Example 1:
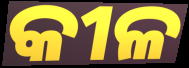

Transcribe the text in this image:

କୀଳ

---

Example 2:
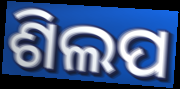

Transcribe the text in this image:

ଶିଲପ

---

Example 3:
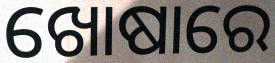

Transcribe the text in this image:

ଖୋଷାରେ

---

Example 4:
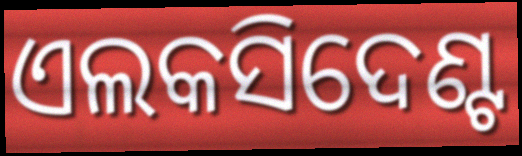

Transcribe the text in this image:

ଏଲକସିଦେଣ୍ଟ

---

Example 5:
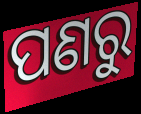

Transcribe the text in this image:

ପଣରୁ